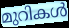
മുറികൾ